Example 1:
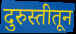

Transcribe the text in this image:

दुरुस्तीतून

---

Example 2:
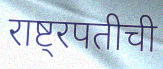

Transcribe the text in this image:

राष्ट्रपतीची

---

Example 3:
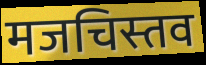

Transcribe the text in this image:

मजचिस्तव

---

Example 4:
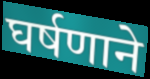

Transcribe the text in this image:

घर्षणाने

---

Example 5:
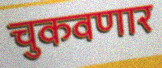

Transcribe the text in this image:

चुकवणार